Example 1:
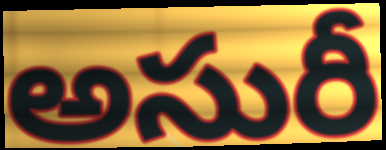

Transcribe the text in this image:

అసురీ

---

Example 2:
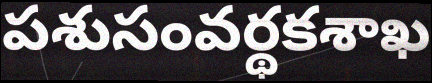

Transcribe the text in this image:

పశుసంవర్థకశాఖ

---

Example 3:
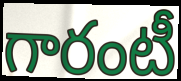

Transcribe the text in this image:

గారంటీ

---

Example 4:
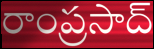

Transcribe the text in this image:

రాంప్రసాద్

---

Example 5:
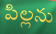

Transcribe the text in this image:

పిల్లను